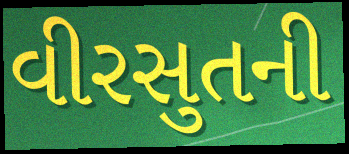
વીરસુતની